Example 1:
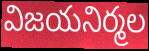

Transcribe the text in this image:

విజయనిర్మల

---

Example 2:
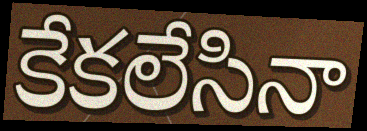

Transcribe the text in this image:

కేకలేసినా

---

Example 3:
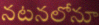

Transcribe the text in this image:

నటనలోనూ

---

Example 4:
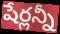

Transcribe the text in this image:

షేర్లన్నీ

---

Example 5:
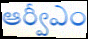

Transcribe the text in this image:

ఆర్వీఎం